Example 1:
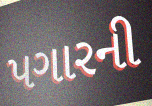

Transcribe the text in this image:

પગારની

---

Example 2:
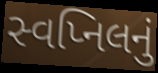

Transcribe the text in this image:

સ્વપ્નિલનું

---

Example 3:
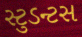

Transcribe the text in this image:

સ્ટુડન્ટસ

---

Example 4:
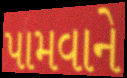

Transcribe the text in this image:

પામવાને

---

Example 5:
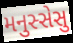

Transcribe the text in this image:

મનુસ્સેસુ